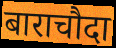
बाराचौदा